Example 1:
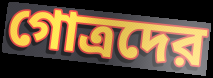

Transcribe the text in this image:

গোত্রদের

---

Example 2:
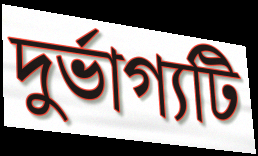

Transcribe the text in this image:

দুর্ভাগ্যটি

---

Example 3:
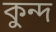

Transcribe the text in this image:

কুন্দ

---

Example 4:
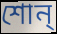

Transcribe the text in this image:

শোন্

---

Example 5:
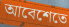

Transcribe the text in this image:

আবেশেতে